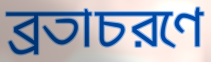
ব্রতাচরণে